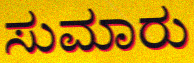
ಸುಮಾರು